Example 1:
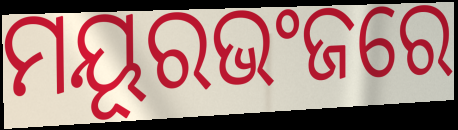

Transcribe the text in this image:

ମୟୂରଭଂଜରେ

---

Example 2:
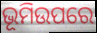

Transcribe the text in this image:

ଭୂମିଉପରେ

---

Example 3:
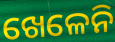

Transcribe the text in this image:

ଖେଳେନି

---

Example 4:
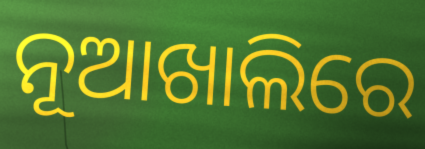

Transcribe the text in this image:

ନୂଆଖାଲିରେ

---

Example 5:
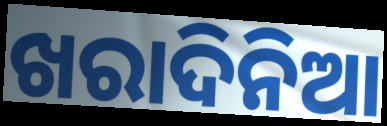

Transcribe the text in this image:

ଖରାଦିନିଆ